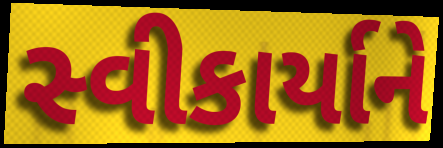
સ્વીકાર્યાને